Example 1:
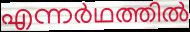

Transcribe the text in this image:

എന്നർഥത്തിൽ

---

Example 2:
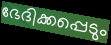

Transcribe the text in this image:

ഭേദിക്കപ്പെടും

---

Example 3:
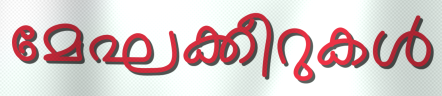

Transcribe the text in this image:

മേഘക്കീറുകൾ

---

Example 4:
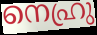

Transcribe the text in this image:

നെഹ്രു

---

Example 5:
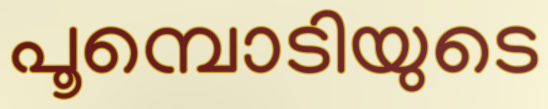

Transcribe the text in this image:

പൂമ്പൊടിയുടെ